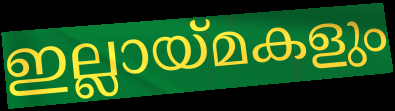
ഇല്ലായ്മകളും